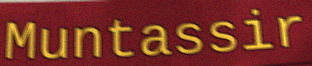
Muntassir